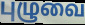
புழுவை